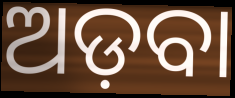
ଅଡ଼ବା